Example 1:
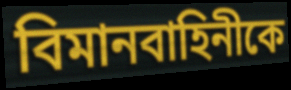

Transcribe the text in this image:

বিমানবাহিনীকে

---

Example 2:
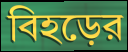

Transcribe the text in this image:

বিহড়ের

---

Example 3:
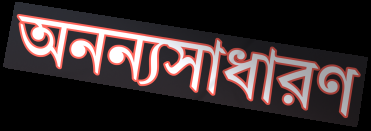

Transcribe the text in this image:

অনন্যসাধারণ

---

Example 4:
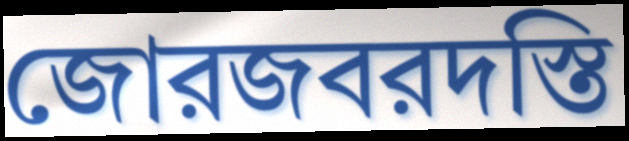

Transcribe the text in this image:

জোরজবরদস্তি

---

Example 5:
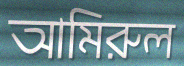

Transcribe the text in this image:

আমিরুল